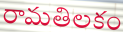
రామతిలకం